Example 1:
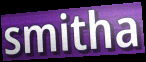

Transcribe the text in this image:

smitha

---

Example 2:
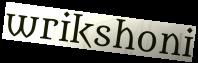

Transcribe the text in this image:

wrikshoni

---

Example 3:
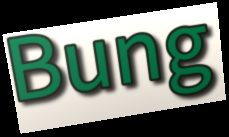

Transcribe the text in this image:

Bung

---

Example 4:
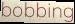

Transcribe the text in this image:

bobbing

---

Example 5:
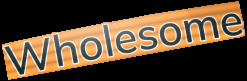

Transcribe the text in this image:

Wholesome